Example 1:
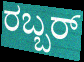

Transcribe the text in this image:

ರಬ್ಬರ್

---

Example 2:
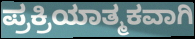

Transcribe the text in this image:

ಪ್ರಕ್ರಿಯಾತ್ಮಕವಾಗಿ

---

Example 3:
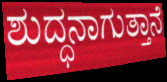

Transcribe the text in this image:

ಶುದ್ಧನಾಗುತ್ತಾನೆ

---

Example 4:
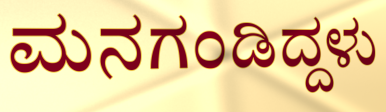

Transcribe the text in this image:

ಮನಗಂಡಿದ್ದಳು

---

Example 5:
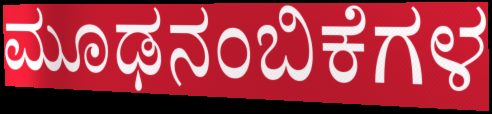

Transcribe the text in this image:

ಮೂಢನಂಬಿಕೆಗಳ